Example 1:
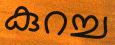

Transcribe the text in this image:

കുറച്ച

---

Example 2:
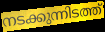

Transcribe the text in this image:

നടക്കുന്നിടത്ത്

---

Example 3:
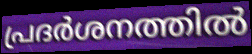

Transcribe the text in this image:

പ്രദർശനത്തിൽ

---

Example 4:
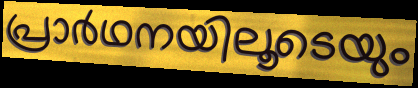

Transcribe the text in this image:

പ്രാർഥനയിലൂടെയും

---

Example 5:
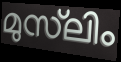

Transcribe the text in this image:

മുസ്‌ലിം